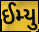
ઈમ્યુ